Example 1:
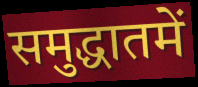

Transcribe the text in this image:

समुद्धातमें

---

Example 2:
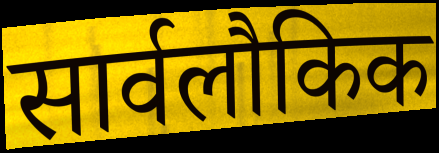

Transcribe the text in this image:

सार्वलौकिक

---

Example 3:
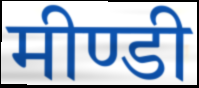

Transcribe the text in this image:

मीण्‍डी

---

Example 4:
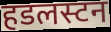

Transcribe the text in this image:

हडलस्टन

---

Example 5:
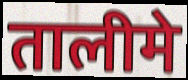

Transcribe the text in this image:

तालीमे